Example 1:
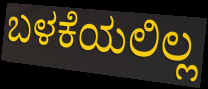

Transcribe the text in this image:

ಬಳಕೆಯಲಿಲ್ಲ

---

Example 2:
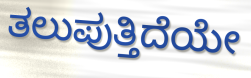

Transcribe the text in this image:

ತಲುಪುತ್ತಿದೆಯೇ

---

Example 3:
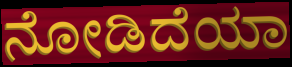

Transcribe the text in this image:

ನೋಡಿದೆಯಾ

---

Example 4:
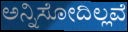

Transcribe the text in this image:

ಅನ್ನಿಸೋದಿಲ್ಲವೆ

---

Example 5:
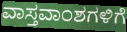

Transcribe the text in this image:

ವಾಸ್ತವಾಂಶಗಳಿಗೆ